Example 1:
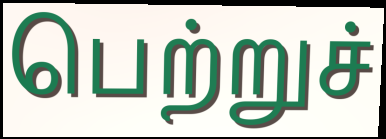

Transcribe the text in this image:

பெற்றுச்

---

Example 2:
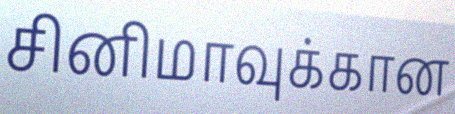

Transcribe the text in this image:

சினிமாவுக்கான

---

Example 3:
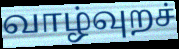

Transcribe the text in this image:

வாழ்வுறச்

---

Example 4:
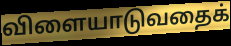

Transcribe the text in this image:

விளையாடுவதைக்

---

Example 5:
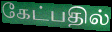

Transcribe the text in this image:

கேட்பதில்